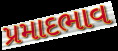
પ્રમાદભાવ